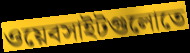
ওয়েবসাইটগুলোতে